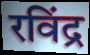
रविंद्र